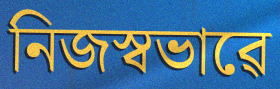
নিজস্বভাৱে